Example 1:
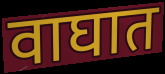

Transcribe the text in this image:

वाघात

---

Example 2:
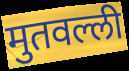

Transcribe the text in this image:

मुतवल्ली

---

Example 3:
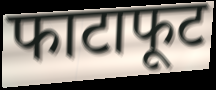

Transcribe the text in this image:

फाटाफूट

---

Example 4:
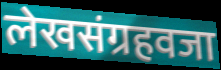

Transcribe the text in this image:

लेखसंग्रहवजा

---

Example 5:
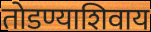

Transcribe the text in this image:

तोडण्याशिवाय